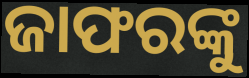
ଜାଫରଙ୍କୁ